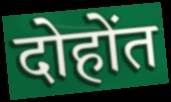
दोहोंत